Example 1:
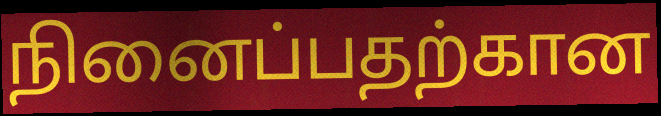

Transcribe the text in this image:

நினைப்பதற்கான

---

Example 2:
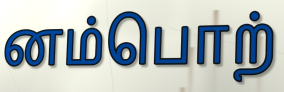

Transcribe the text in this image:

னம்பொற்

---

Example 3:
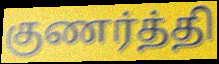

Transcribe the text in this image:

குணர்த்தி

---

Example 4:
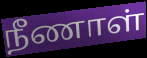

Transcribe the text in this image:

நீணாள்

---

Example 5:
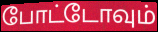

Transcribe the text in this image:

போட்டோவும்